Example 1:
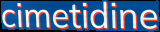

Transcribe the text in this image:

cimetidine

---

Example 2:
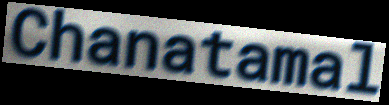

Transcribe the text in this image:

Chanatamal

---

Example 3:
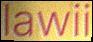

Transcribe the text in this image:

lawii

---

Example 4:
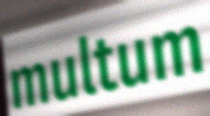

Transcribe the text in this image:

multum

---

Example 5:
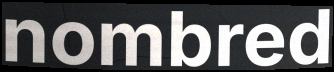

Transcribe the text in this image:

nombred